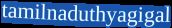
tamilnaduthyagigal